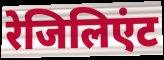
रेजिलिएंट